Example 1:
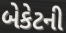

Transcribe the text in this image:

બેકેટની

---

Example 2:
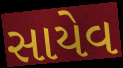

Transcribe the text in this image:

સાયેવ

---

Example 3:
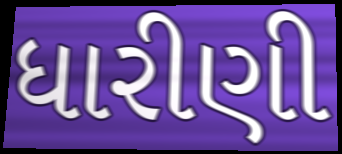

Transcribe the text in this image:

ધારીણી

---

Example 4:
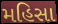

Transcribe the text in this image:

મહિસા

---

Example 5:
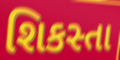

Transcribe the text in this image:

શિકસ્તા